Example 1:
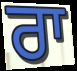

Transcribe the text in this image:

ਰਾ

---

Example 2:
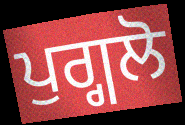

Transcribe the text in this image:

ਪੁਗ੍ਗਲੋ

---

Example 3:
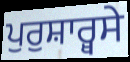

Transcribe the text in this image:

ਪੁਰੁਸ਼ਾਰ੍ਥਸੇ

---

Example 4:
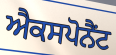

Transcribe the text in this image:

ਐਕਸਪੋਨੈਂਟ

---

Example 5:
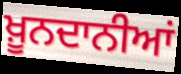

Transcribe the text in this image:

ਖ਼ੂਨਦਾਨੀਆਂ